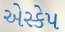
એસ્કેપ